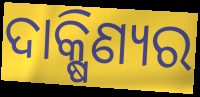
ଦାକ୍ଷିଣ୍ୟର